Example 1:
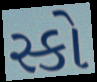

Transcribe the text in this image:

સ્કો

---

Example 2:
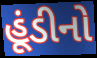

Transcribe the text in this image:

હૂંડીનો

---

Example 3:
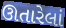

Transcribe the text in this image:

ઊતારેલાં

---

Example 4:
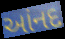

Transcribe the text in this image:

આંનદ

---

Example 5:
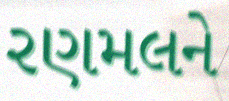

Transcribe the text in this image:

રણમલને